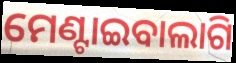
ମେଣ୍ଟାଇବାଲାଗି